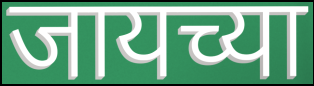
जायच्या